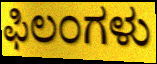
ಫಿಲಂಗಳು